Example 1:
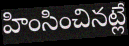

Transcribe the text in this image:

హింసించినట్లే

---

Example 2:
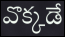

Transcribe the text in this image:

వొక్కడే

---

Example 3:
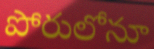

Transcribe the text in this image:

పోరులోనూ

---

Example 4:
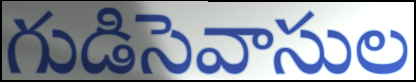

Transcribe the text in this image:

గుడిసెవాసుల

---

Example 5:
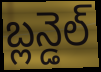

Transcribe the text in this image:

బ్లన్డెల్